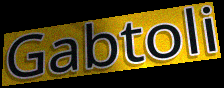
Gabtoli